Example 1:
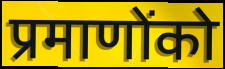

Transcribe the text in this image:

प्रमाणोंको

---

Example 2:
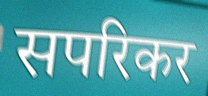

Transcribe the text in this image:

सपरिकर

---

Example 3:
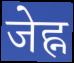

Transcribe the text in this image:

जेह्न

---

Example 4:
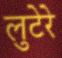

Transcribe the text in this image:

लुटेरे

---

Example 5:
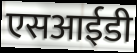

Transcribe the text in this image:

एसआईडी